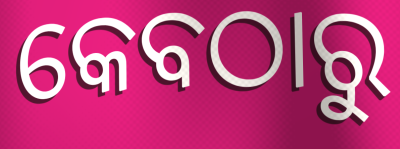
କେବଠାରୁ